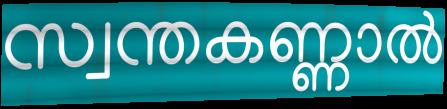
സ്വന്തകണ്ണാൽ